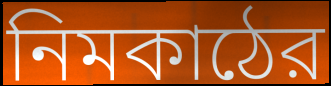
নিমকাঠের